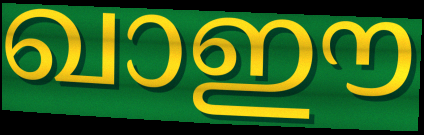
ഖാഈ